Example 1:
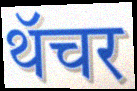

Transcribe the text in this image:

थॅचर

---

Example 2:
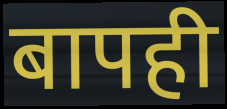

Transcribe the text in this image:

बापही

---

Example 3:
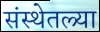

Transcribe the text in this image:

संस्थेतल्या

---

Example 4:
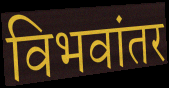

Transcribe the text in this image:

विभवांतर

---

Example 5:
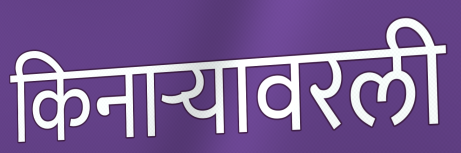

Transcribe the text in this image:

किनाऱ्यावरली